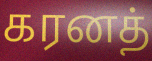
கரனத்